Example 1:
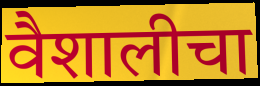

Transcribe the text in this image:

वैशालीचा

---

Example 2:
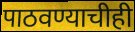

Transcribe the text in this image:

पाठवण्याचीही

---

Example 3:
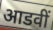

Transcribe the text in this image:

आडवीं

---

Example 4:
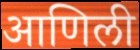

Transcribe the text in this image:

आणिली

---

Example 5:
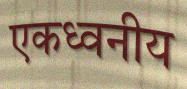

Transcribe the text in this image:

एकध्वनीय